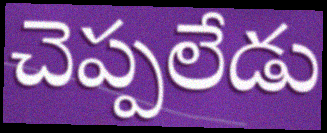
చెప్పలేడు